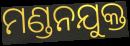
ମଣ୍ଡନଯୁକ୍ତ